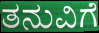
ತನುವಿಗೆ